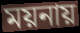
ময়নায়